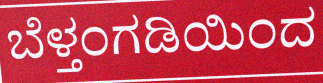
ಬೆಳ್ತಂಗಡಿಯಿಂದ